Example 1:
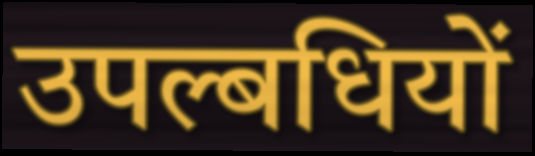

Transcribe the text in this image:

उपल्बधियों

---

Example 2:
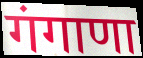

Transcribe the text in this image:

गंगाणा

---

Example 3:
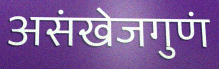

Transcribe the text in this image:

असंखेजगुणं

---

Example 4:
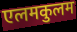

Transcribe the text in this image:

एलमकुलम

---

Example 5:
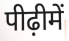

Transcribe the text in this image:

पीढ़ीमें